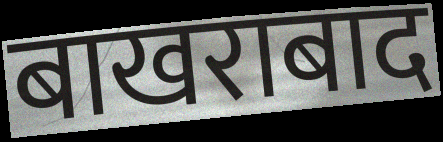
बाखराबाद